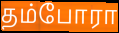
தம்போரா